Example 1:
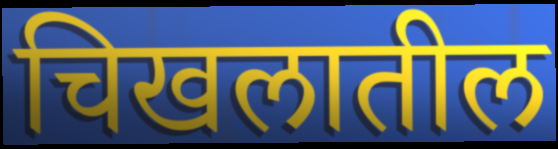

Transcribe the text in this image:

चिखलातील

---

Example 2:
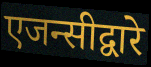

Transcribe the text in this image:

एजन्सीद्वारे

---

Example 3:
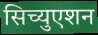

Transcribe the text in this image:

सिच्युएशन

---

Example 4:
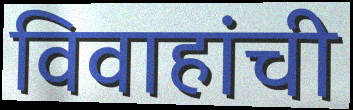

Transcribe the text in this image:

विवाहांची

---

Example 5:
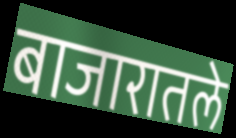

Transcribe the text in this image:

बाजारातले